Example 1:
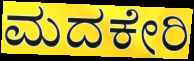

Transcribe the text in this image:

ಮದಕೇರಿ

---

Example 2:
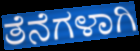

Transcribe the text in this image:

ತೆನೆಗಳಾಗಿ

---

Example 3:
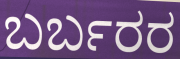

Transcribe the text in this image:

ಬರ್ಬರರ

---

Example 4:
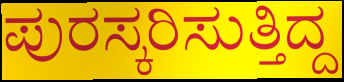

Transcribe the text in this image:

ಪುರಸ್ಕರಿಸುತ್ತಿದ್ದ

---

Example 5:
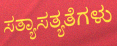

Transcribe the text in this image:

ಸತ್ಯಾಸತ್ಯತೆಗಳು